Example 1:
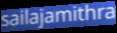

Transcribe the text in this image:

sailajamithra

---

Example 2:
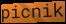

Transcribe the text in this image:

picnik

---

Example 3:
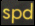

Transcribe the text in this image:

spd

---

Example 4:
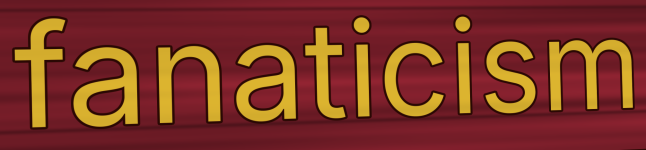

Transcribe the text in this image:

fanaticism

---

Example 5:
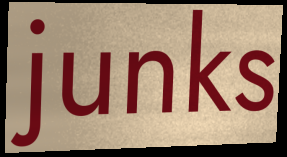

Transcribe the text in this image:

junks